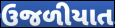
ઉજળીયાત